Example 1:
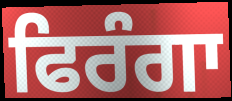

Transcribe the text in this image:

ਫਿਰੰਗਾ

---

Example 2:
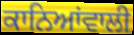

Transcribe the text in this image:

ਕਾਨਿਆਂਵਾਲੀ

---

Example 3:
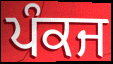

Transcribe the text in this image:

ਪੰਕਜ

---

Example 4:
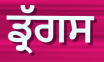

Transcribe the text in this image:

ਡ੍ਰੱਗਸ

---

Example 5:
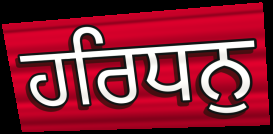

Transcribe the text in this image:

ਹਰਿਧਨੁ